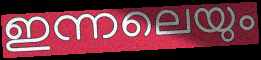
ഇന്നലെയും